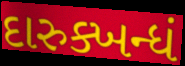
દારુક્ખન્ધં